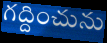
గద్దించును